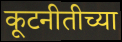
कूटनीतीच्या